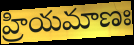
హ్రియమాణః